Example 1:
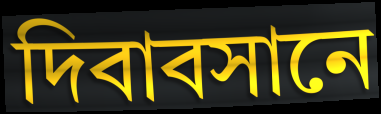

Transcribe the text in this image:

দিবাবসানে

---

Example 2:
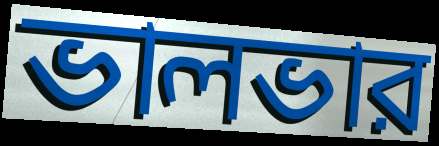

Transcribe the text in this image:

ভালভার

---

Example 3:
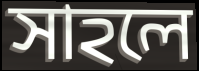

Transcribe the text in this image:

সাহলে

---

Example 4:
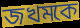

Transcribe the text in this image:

জখমকে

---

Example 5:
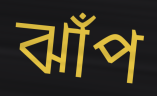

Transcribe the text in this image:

ঝাঁপ